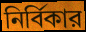
নির্বিকার